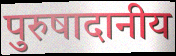
पुरुषादानीय